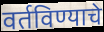
वर्तविण्याचे